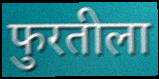
फुरतीला